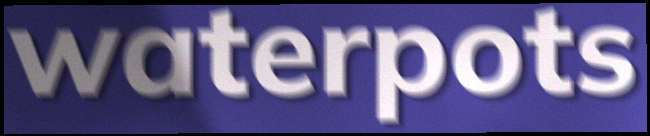
waterpots